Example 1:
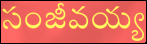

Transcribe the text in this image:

సంజీవయ్య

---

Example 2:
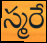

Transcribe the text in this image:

స్మరే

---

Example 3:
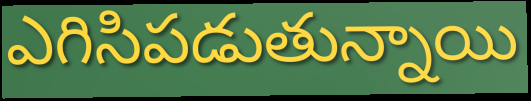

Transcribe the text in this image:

ఎగిసిపడుతున్నాయి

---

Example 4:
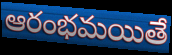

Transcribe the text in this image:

ఆరంభమయితే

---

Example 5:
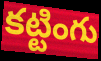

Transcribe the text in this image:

కట్టింగు